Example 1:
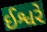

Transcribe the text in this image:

ઈશ્વરે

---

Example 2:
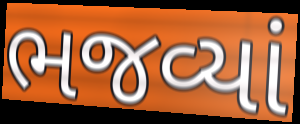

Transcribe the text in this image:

ભજવ્યાં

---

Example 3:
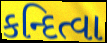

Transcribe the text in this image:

કન્દિત્વા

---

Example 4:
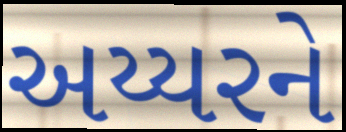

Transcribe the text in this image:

અય્યરને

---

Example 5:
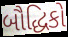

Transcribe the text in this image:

બૌદ્ધિકો